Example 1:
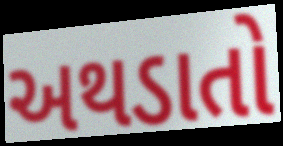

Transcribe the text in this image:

અથડાતો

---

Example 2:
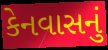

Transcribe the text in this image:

કેનવાસનું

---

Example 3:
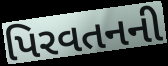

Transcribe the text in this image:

પિરવતનની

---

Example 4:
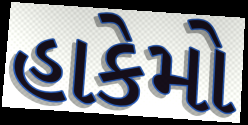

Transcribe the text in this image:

હાકેમો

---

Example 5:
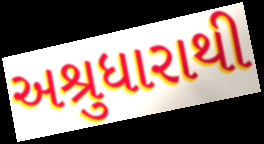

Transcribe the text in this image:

અશ્રુધારાથી